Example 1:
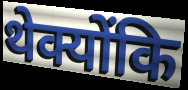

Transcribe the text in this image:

थेक्योंकि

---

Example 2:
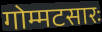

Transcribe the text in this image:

गोम्मटसारः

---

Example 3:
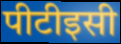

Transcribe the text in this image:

पीटीइसी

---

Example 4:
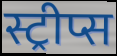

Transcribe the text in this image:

स्ट्रीप्स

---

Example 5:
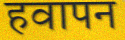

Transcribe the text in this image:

हवापन